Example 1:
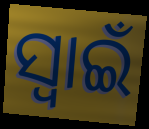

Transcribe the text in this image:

ସ୍ଵାଇଁ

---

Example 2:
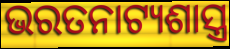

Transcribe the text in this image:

ଭରତନାଟ୍ୟଶାସ୍ତ୍ର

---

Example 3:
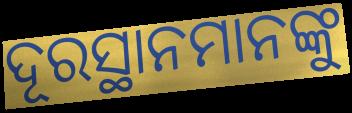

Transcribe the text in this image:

ଦୂରସ୍ଥାନମାନଙ୍କୁ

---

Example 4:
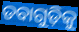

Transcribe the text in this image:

ଡବାଗୁଡ଼ିକୁ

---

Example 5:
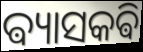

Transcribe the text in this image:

ଵ୍ୟାସକଵି